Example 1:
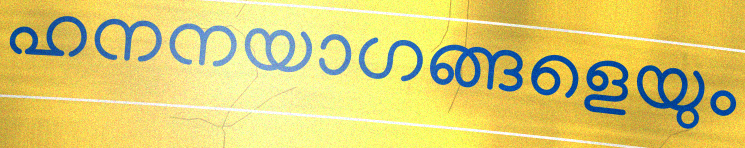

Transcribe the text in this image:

ഹനനയാഗങ്ങളെയും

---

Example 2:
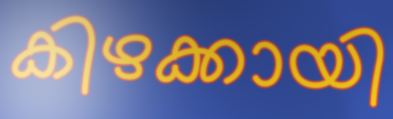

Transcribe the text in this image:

കിഴക്കായി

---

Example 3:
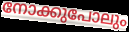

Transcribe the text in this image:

നോക്കുപോലും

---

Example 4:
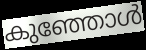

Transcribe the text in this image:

കുഞ്ഞോൾ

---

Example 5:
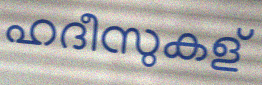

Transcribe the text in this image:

ഹദീസുകള്